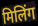
मिलिंग